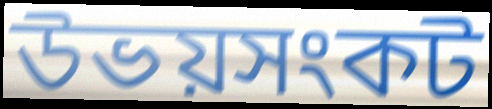
উভয়সংকট